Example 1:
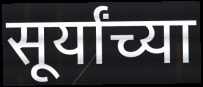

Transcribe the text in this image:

सूर्यांच्या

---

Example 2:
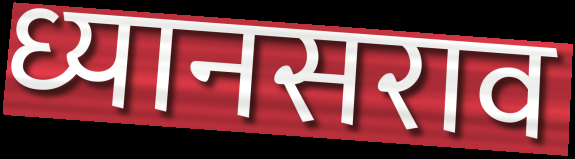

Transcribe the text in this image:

ध्यानसराव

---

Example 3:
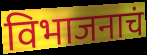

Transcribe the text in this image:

विभाजनाचं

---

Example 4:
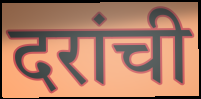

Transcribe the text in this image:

दरांची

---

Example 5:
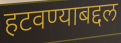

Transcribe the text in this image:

हटवण्याबद्दल